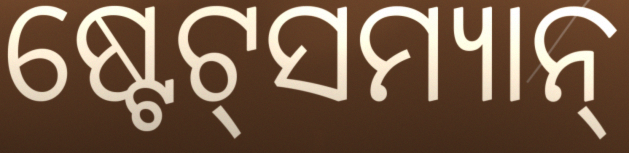
ଷ୍ଟେଟ୍‌ସମ୍ୟାନ୍